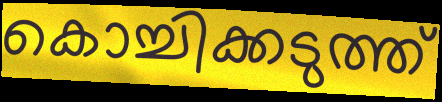
കൊച്ചിക്കടുത്ത്